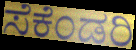
ಸೆಕೆಂಡರಿ